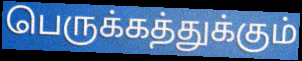
பெருக்கத்துக்கும்